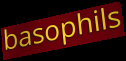
basophils